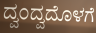
ದ್ವಂದ್ವದೊಳಗೆ